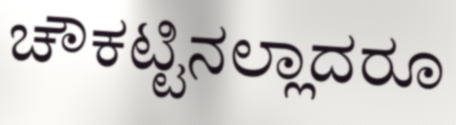
ಚೌಕಟ್ಟಿನಲ್ಲಾದರೂ